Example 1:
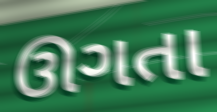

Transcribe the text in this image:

ઊગતા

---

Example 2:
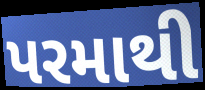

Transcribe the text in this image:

પરમાથી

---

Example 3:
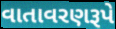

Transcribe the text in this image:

વાતાવરણરૂપે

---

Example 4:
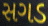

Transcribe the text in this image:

સગડ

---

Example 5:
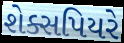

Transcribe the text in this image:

શેક્સપિયરે